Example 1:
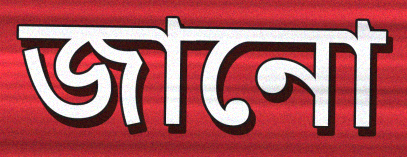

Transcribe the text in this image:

জানো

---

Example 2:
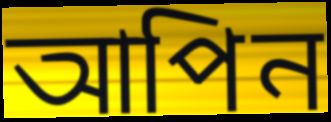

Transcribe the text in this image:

আপিন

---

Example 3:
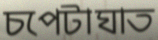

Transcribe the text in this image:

চপেটাঘাত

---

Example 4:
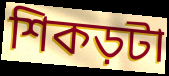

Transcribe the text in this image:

শিকড়টা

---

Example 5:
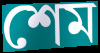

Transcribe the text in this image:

শেম